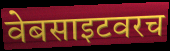
वेबसाइटवरच